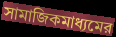
সামাজিকমাধ্যমের